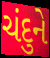
ચંદુને